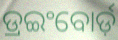
ଡ୍ରଇଂବୋର୍ଡ଼